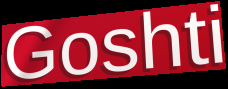
Goshti